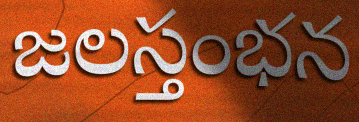
జలస్తంభన